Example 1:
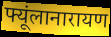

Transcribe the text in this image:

फ्यूंलानारायण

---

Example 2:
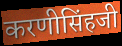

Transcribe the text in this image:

करणीसिंहजी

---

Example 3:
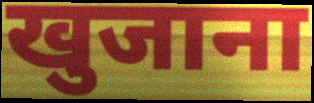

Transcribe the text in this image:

खुजाना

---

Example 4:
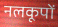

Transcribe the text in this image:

नलकूपों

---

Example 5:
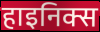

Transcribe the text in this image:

हाइनिक्स